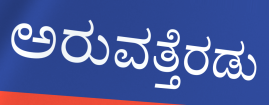
ಅರುವತ್ತೆರಡು